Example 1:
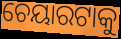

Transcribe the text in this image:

ଚେୟାରଟାକୁ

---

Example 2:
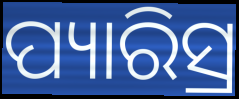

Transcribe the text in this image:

ପ୍ୟାରିସ୍ର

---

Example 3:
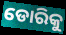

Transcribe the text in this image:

ଡୋରିକୁ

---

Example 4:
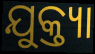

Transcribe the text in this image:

ଯୁକ୍ତ୍ୟା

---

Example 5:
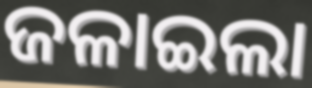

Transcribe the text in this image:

ଜଳାଇଲା